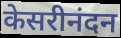
केसरीनंदन